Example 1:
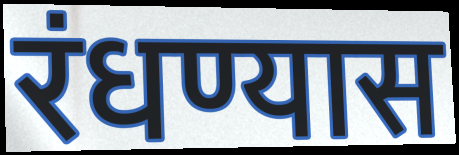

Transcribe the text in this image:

रंधण्यास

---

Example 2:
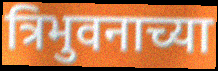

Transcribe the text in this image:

त्रिभुवनाच्या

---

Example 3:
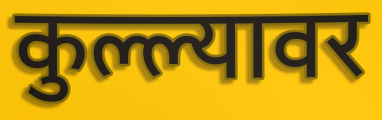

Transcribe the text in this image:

कुल्ल्यावर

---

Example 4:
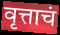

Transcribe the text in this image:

वृत्ताचं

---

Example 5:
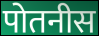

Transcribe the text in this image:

पोतनीस